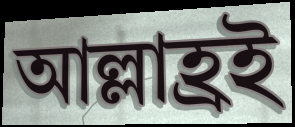
আল্লাহ্রই